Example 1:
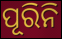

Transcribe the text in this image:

ପୂରିନି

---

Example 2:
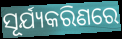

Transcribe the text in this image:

ସୂର୍ଯ୍ୟକରିଣରେ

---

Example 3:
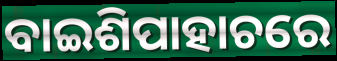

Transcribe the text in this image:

ବାଇଶିପାହାଚରେ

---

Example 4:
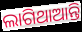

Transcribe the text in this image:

ଲାଗିଥାଆନ୍ତି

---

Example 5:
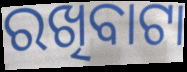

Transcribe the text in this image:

ରଖିବାଟା